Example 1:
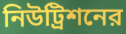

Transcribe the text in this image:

নিউট্রিশনের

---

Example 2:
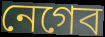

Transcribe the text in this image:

নেগেব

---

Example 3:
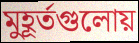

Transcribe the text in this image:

মুহূর্তগুলোয়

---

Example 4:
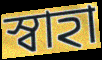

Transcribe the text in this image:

স্বাহা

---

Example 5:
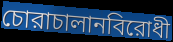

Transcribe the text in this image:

চোরাচালানবিরোধী